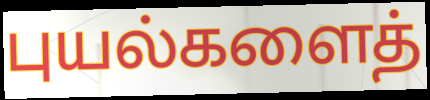
புயல்களைத்